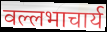
वल्‍लभाचार्य